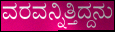
ವರವನ್ನಿತ್ತಿದ್ದನು